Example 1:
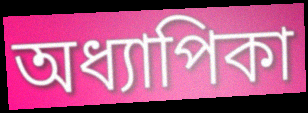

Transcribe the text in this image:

অধ্যাপিকা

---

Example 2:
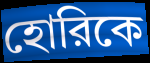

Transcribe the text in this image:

হোরিকে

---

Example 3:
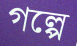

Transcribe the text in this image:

গল্পে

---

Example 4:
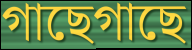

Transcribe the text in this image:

গাছেগাছে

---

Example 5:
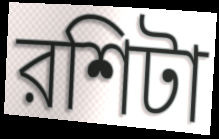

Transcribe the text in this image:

রশিটা